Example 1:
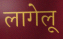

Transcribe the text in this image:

लागेलू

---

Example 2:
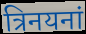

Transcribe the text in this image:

त्रिनयनां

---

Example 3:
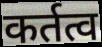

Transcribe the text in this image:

कर्तत्व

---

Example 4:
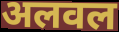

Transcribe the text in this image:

अलवल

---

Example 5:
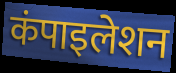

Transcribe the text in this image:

कंपाइलेशन